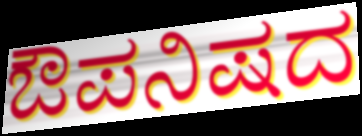
ಔಪನಿಷದ